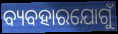
ବ୍ୟବହାରଯୋଗୁଁ